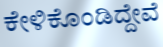
ಕೇಳಿಕೊಂಡಿದ್ದೇವೆ